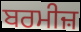
ਬਰਮੀਜ਼